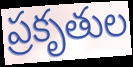
ప్రకృతుల